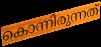
കൊന്നിരുന്നത്